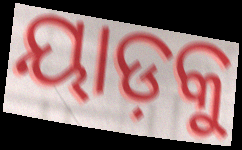
ୟାଡ଼କୁ